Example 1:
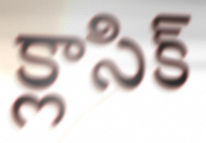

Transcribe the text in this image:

క్లాసిక్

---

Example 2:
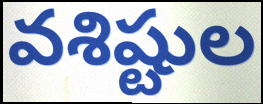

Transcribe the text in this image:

వశిష్టుల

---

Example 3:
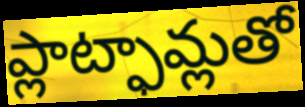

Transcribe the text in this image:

ప్లాట్ఫామ్లతో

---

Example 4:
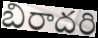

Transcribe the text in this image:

బిరాదరి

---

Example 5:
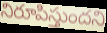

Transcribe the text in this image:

నిరూపిస్తుందని